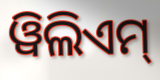
ୱିଲିଏମ୍